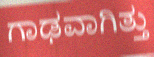
ಗಾಢವಾಗಿತ್ತು